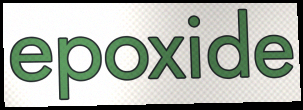
epoxide